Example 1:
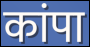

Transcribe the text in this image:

कांपा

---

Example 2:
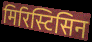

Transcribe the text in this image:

मिरिस्टिसिन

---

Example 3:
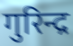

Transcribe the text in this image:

गुरिन्द्र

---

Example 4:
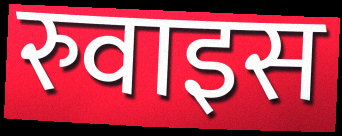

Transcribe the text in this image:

रुवाइस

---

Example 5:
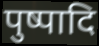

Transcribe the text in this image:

पुष्पादि